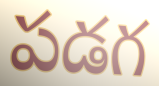
పడగ